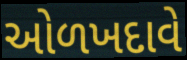
ઓળખદાવે